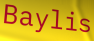
Baylis